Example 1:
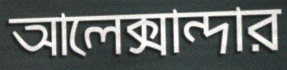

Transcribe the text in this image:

আলেক্সান্দার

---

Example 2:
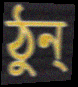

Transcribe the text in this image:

ঠুন্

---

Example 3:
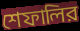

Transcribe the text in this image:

শেফালির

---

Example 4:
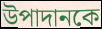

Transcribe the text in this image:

উপাদানকে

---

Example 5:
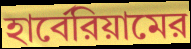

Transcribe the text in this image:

হার্বেরিয়ামের